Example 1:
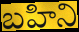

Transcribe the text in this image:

బహిని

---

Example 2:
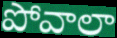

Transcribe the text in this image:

పోవాలా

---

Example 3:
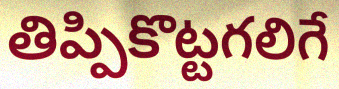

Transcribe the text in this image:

తిప్పికొట్టగలిగే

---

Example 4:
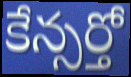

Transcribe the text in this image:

కేన్సర్తో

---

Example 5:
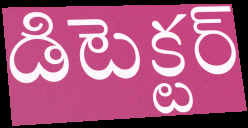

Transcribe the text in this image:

డిటెక్టర్